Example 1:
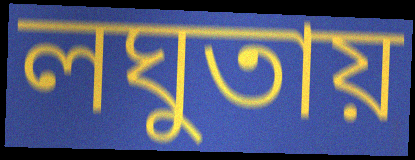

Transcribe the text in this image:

লঘুতায়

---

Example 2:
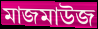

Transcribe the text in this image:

মাজমাউজ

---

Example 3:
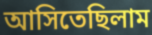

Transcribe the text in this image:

আসিতেছিলাম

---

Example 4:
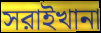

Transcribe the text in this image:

সরাইখানা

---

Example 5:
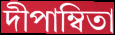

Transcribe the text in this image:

দীপাম্বিতা